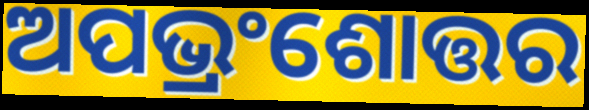
ଅପଭ୍ରଂଶୋତ୍ତର